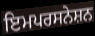
ਇਮਪਰਸਨੇਸ਼ਨ